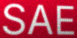
SAE